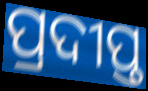
ପ୍ରଦୀପ୍ତ